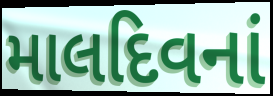
માલદિવનાં